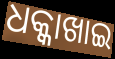
ଧକ୍କାଖାଇ